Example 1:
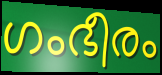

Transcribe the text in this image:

ഗംഭീരം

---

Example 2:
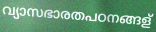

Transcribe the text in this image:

വ്യാസഭാരതപഠനങ്ങള്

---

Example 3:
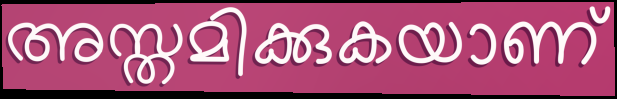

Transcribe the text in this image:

അസ്തമിക്കുകയാണ്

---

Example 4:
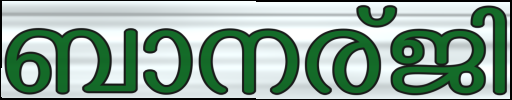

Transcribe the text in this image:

ബാനര്ജി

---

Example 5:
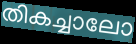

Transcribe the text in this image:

തികച്ചാലോ